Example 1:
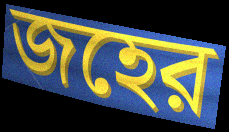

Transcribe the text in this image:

জহের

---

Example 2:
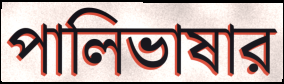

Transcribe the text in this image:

পালিভাষার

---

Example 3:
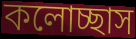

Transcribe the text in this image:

কলোচ্ছাস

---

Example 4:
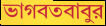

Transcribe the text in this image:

ভাগবতবাবুর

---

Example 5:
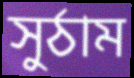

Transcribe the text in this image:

সুঠাম